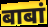
बाबां